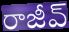
రాజీవ్